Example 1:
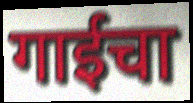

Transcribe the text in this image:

गाईचा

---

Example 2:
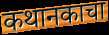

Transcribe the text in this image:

कथानकाचा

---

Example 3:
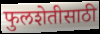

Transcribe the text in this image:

फुलशेतीसाठी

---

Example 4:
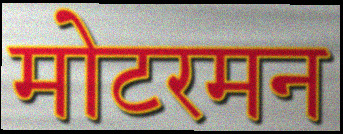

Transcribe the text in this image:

मोटरमन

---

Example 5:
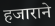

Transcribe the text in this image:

हजाराने